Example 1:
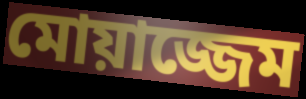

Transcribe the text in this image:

মোয়াজ্জেম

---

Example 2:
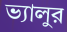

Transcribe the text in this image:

ভ্যালুর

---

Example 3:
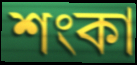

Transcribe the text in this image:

শংকা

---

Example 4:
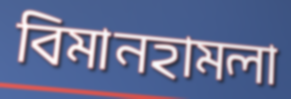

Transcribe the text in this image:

বিমানহামলা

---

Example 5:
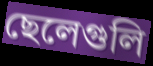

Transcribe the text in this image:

ছেলেগুলি